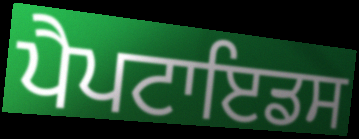
ਪੈਪਟਾਇਡਸ